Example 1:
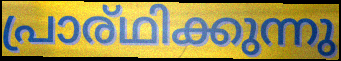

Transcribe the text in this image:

പ്രാര്ഥിക്കുന്നു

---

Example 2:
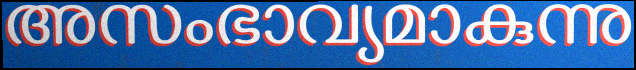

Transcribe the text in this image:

അസംഭാവ്യമാകുന്നു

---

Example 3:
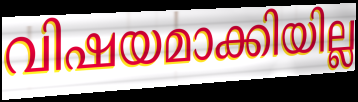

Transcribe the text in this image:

വിഷയമാക്കിയില്ല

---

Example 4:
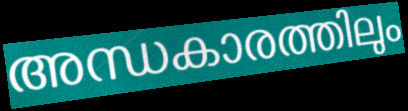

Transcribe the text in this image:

അന്ധകാരത്തിലും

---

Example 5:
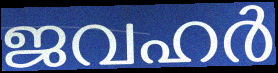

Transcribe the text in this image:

ജവഹർ